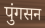
पुंगसन